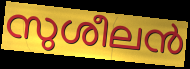
സുശീലൻ